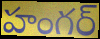
హంగర్